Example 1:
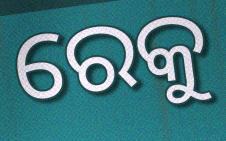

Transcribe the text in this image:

ରେକୁ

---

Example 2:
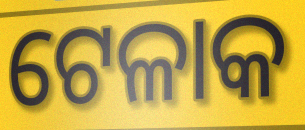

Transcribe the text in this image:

ଟେଳାକ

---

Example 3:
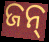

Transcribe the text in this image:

ଜନ୍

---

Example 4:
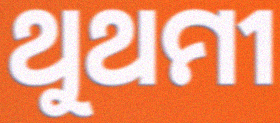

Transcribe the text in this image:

ଥୁଥମୀ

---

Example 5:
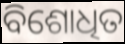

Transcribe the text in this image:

ବିଶୋଧିତ